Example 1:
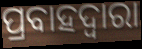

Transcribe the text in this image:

ପ୍ରବାହଦ୍ୱାରା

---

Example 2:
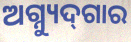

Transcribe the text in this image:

ଅଗ୍ନ୍ୟୁଦ୍‌ଗାର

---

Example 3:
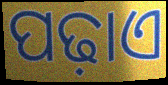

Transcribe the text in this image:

ପଢ଼ାଏ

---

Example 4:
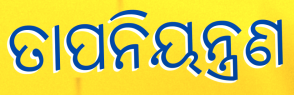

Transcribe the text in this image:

ତାପନିୟନ୍ତ୍ରଣ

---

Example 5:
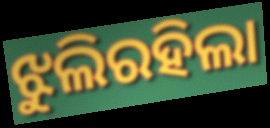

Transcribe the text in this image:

ଝୁଲିରହିଲା